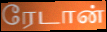
ரேடான்